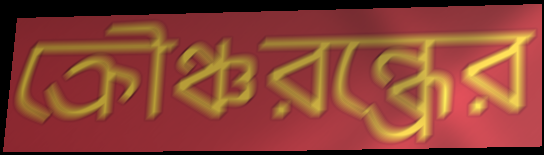
ক্রৌঞ্চরন্ধ্রের